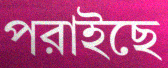
পরাইছে